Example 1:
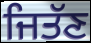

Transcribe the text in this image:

ਜਿਤੱਣ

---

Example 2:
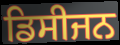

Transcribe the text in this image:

ਡਿਸੀਜਨ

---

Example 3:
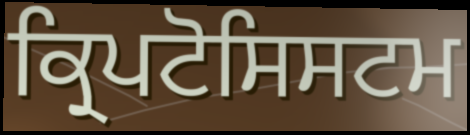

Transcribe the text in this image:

ਕ੍ਰਿਪਟੋਸਿਸਟਮ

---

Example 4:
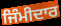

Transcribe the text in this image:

ਜਿੰਮੀਦਾਰ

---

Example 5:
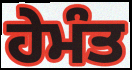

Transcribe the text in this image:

ਹੇਮੰਤ